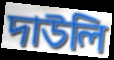
দাউলি